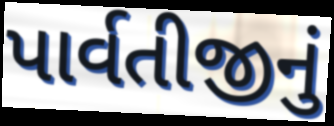
પાર્વતીજીનું